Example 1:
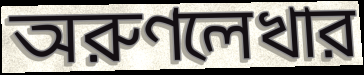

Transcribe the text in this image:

অরুণলেখার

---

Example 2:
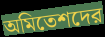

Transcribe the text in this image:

অমিতেশদের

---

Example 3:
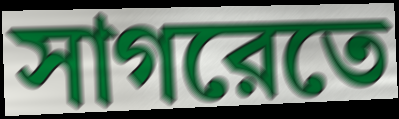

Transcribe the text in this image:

সাগরেতে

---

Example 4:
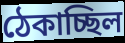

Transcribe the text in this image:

ঠেকাচ্ছিল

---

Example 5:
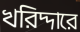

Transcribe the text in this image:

খরিদ্দারে